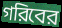
গরিবের